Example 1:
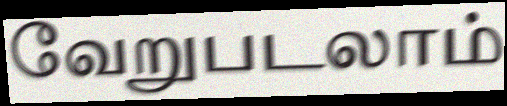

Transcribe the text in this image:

வேறுபடலாம்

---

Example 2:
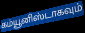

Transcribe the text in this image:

கம்யூனிஸ்டாகவும்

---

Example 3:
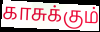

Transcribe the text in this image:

காசுக்கும்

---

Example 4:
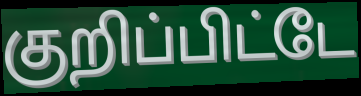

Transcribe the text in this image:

குறிப்பிட்டே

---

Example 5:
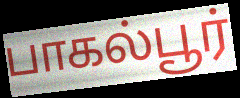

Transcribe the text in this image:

பாகல்பூர்